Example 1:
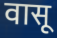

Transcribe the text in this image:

वासू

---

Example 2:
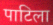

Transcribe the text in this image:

पाटिला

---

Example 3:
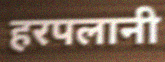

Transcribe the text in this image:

हरपलानी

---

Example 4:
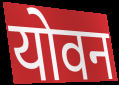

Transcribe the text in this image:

योवन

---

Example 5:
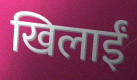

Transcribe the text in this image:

खिलाईं